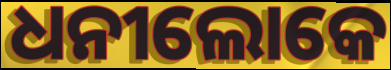
ଧନୀଲୋକେ